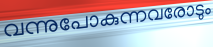
വന്നുപോകുന്നവരോടും